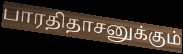
பாரதிதாசனுக்கும்